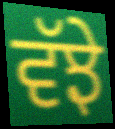
ਵੱਝੇ